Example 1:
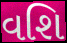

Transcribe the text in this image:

વશિ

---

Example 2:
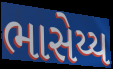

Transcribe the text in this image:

ભાસેય્ય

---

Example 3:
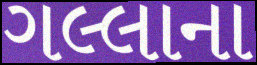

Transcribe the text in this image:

ગલ્લાના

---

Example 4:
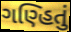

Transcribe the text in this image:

ગણ્હિતું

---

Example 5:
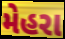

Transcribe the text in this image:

મેહરા